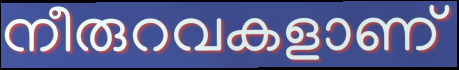
നീരുറവകളാണ്